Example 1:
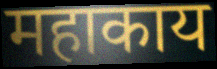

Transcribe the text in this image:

महाकाय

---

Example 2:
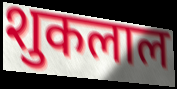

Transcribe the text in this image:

शुकलाल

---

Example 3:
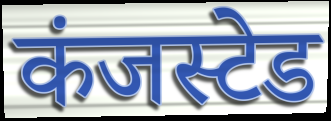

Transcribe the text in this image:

कंजस्टेड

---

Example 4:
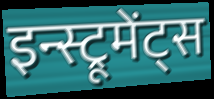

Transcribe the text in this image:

इन्स्ट्रूमेंट्स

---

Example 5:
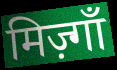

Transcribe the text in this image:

मिज़्गाँ